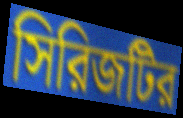
সিরিজটির